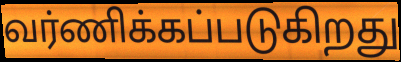
வர்ணிக்கப்படுகிறது